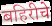
बहिरीचे